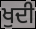
ਖੁਦੀ